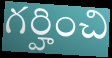
గర్హించి